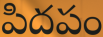
పిదపం